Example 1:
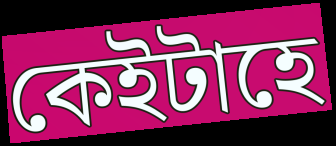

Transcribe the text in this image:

কেইটাহে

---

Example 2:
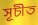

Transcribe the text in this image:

সূচীত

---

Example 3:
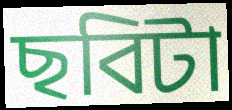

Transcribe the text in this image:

ছবিটা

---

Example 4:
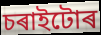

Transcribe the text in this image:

চৰাইটোৰ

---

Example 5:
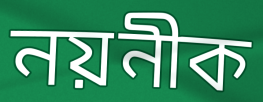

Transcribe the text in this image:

নয়নীক